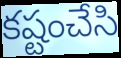
కష్టంచేసి